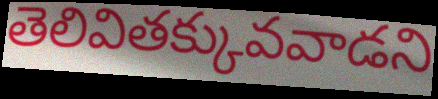
తెలివితక్కువవాడని